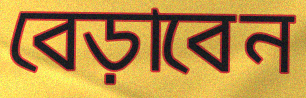
বেড়াবেন